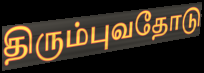
திரும்புவதோடு